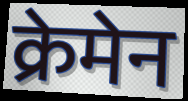
क्रेमेन